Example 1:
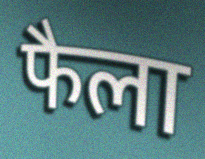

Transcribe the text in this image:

फैला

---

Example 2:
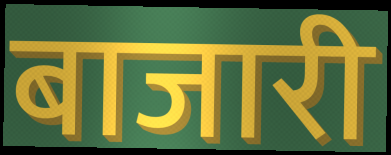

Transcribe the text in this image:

बाजारी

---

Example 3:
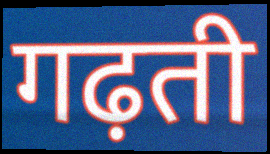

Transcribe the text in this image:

गढ़ती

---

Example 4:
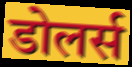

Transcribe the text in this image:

डोलर्स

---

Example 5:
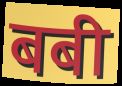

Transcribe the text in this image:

बबी